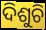
ଦିଶୁଚି